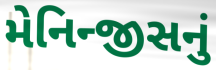
મેનિન્જીસનું